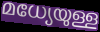
മധ്യേയുള്ള